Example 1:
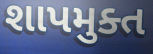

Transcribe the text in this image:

શાપમુક્ત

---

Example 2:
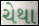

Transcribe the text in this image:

ચેથા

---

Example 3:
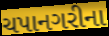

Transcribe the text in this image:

ચપાનગરીના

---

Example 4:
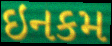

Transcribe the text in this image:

ઇનકમ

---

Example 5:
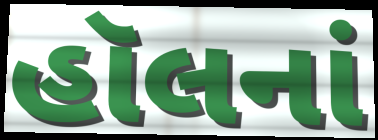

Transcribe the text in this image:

હૉલનાં